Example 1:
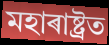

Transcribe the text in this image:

মহাৰাষ্ট্ৰত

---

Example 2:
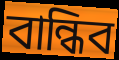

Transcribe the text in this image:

বান্ধিব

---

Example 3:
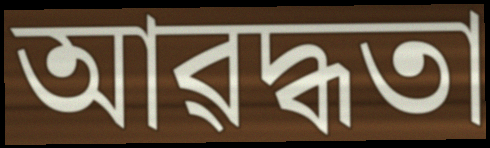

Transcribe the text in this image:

আৱদ্ধতা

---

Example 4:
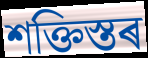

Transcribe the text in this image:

শক্তিস্তৰ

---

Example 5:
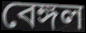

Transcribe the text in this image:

বেঙ্গল